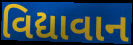
વિદ્યાવાન